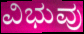
ವಿಭುವು